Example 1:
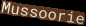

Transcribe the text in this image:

Mussoorie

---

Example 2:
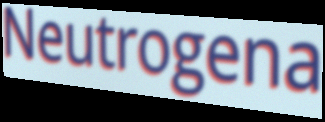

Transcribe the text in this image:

Neutrogena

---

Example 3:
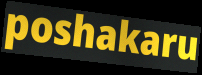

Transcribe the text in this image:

poshakaru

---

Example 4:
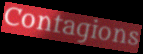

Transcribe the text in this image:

Contagions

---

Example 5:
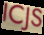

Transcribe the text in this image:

ICJS